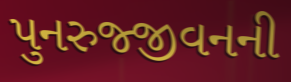
પુનરુજ્જીવનની